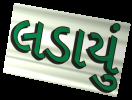
લડાયું